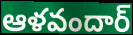
ఆళవందార్